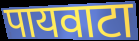
पायवाटा